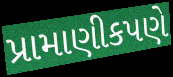
પ્રામાણીકપણે